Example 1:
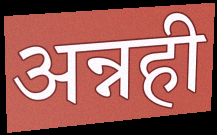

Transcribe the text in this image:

अन्नही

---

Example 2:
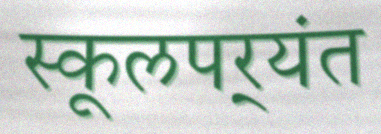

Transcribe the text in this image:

स्कूलपर्यंत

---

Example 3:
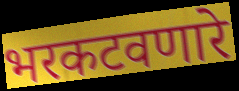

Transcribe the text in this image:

भरकटवणारे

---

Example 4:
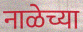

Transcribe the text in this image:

नाळेच्या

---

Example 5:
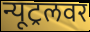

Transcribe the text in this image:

न्यूट्रलवर